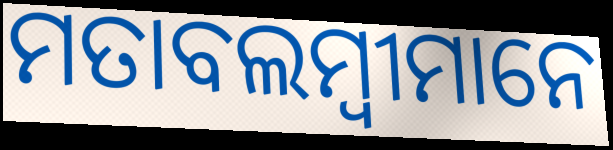
ମତାବଲମ୍ବୀମାନେ